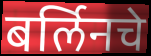
बर्लिनचे